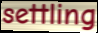
settling